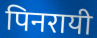
पिनरायी